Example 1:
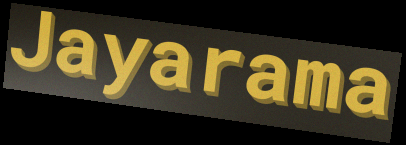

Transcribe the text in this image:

Jayarama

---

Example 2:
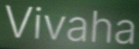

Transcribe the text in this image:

Vivaha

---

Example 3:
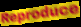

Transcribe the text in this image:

Reproduce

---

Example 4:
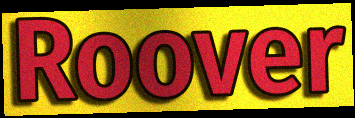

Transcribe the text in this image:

Roover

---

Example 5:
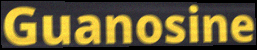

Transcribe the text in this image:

Guanosine